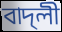
বাদ্‌লী